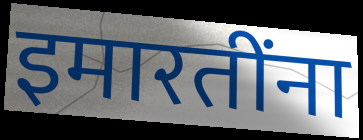
इमारतींना